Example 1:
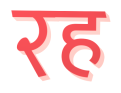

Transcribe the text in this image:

रह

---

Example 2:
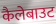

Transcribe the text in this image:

कैलेबाउट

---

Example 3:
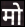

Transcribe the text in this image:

मो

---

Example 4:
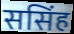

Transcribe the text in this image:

ससिंह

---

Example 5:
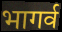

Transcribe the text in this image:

भागर्व